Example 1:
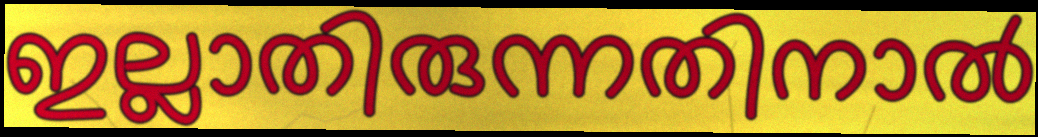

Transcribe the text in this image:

ഇല്ലാതിരുന്നതിനാൽ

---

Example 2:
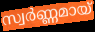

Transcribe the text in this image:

സ്വർണ്ണമായ്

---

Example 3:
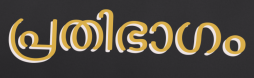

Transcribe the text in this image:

പ്രതിഭാഗം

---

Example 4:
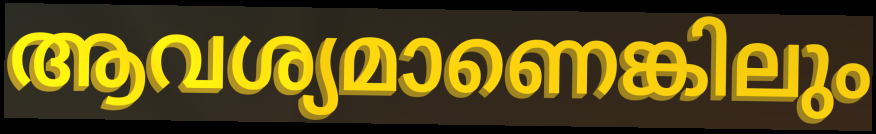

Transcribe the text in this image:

ആവശ്യമാണെങ്കിലും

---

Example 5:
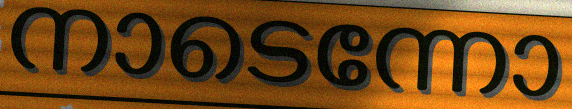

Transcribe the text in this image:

നാടെന്നോ